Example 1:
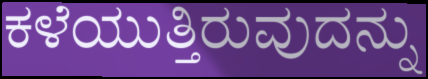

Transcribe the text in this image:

ಕಳೆಯುತ್ತಿರುವುದನ್ನು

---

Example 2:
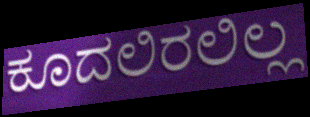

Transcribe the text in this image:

ಕೂದಲಿರಲಿಲ್ಲ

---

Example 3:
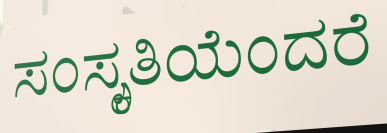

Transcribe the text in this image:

ಸಂಸ್ಕೃತಿಯೆಂದರೆ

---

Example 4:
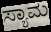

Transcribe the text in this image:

ಸ್ಯಾಮ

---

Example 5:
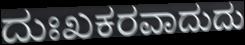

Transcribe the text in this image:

ದುಃಖಕರವಾದುದು